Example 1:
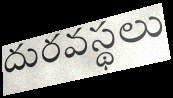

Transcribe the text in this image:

దురవస్థలు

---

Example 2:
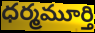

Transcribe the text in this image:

ధర్మమూర్తి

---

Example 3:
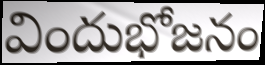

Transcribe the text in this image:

విందుభోజనం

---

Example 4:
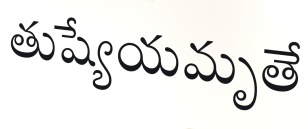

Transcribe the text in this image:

తుష్యేయమృతే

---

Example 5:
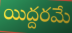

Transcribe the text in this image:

యిద్దరమే